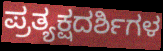
ಪ್ರತ್ಯಕ್ಷದರ್ಶಿಗಳ